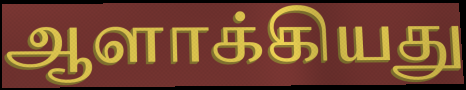
ஆளாக்கியது